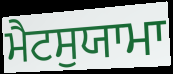
ਮੈਟਸੁਯਾਮਾ